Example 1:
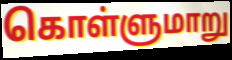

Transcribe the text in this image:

கொள்ளுமாறு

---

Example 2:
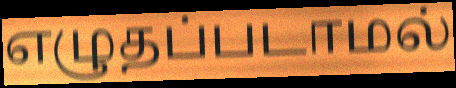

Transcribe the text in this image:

எழுதப்படாமல்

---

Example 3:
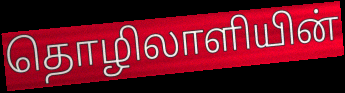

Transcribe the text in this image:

தொழிலாளியின்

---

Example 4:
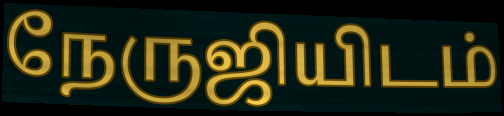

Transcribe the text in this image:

நேருஜியிடம்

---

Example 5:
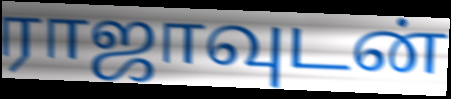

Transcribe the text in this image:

ராஜாவுடன்